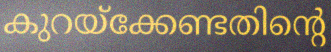
കുറയ്ക്കേണ്ടതിന്റെ